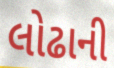
લોઢાની